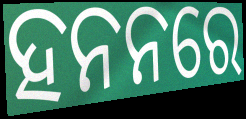
ହନନରେ